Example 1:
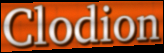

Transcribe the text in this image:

Clodion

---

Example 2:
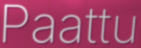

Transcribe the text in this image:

Paattu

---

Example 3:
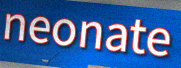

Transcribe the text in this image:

neonate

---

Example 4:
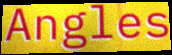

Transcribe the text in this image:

Angles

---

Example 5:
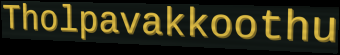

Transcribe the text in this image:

Tholpavakkoothu